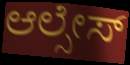
ಆಲ್ಸೇಸ್